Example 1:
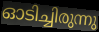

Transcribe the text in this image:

ഓടിച്ചിരുന്നു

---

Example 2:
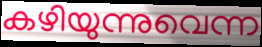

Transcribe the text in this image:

കഴിയുന്നുവെന്ന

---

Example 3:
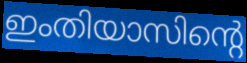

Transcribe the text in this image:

ഇംതിയാസിന്റെ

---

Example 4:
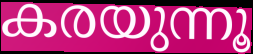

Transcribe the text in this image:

കരയുന്നൂ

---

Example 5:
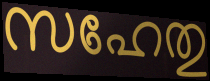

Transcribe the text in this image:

സഹേതു